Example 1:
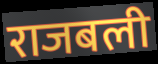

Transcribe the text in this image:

राजबली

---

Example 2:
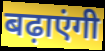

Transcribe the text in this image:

बढ़ाएंगी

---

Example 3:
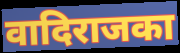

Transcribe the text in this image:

वादिराजका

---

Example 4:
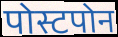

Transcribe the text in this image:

पोस्टपोन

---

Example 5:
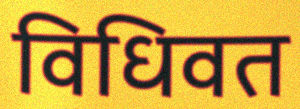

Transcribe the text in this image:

विधिवत